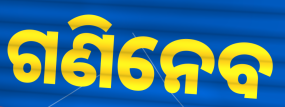
ଗଣିନେବ